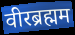
वीरब्रह्मम